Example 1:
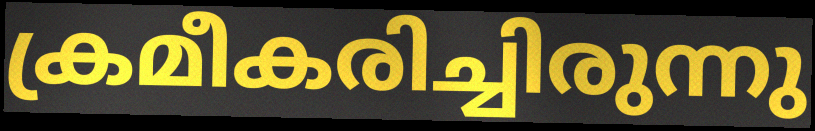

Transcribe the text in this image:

ക്രമീകരിച്ചിരുന്നു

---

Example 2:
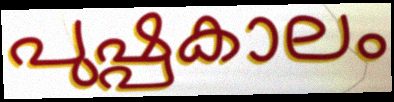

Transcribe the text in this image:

പുഷ്പകാലം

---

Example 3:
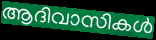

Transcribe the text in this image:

ആദിവാസികൾ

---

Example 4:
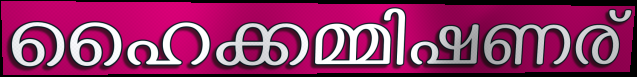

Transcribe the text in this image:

ഹൈക്കമ്മിഷണര്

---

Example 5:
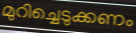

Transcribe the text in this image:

മുറിച്ചെടുക്കണം